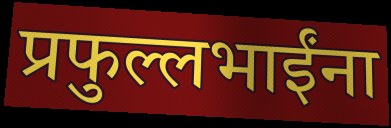
प्रफुल्लभाईंना